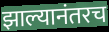
झाल्यानंतरच